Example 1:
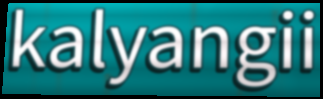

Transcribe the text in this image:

kalyangii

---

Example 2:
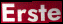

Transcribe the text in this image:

Erste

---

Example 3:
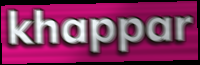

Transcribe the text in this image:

khappar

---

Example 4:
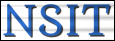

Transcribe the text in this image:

NSIT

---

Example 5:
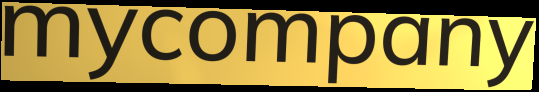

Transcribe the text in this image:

mycompany